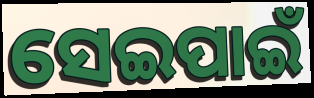
ସେଇପାଇଁ